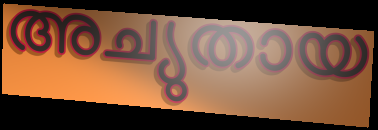
അച്യുതായ